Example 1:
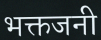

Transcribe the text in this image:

भक्तजनी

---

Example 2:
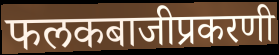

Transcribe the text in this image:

फलकबाजीप्रकरणी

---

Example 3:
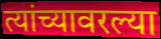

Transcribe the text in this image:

त्यांच्यावरल्या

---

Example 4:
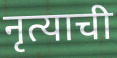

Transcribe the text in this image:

नृत्याची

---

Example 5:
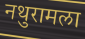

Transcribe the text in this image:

नथुरामला